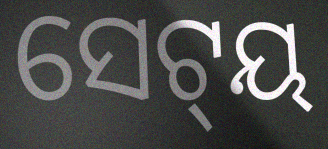
ସେଟ୍‌ୟ